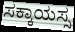
ಸಕ್ಕಾಯಸ್ಸ